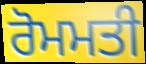
ਰੋਮਮਤੀ